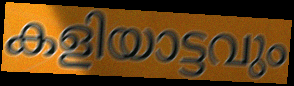
കളിയാട്ടവും